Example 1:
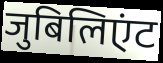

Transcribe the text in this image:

जुबिलिएंट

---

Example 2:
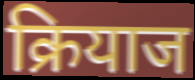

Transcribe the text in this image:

क्रियाज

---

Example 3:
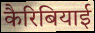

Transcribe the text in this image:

कैरिबियाई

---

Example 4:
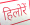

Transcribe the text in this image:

हिलोरें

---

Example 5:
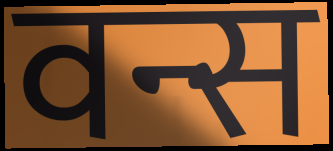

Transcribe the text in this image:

वन्स